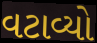
વટાવ્યો